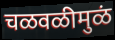
चळवळीमुळं